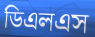
ডিএলএস